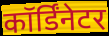
कॉर्डिंनेटर